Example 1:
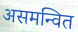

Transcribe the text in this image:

असमन्वित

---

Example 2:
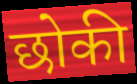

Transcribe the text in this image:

छोकी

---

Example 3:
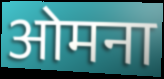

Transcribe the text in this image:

ओमना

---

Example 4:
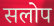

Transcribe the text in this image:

सलोप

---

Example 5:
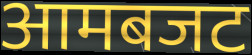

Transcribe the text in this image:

आमबजट